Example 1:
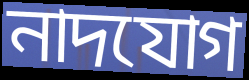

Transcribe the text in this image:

নাদযোগ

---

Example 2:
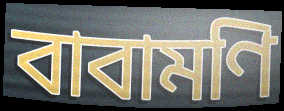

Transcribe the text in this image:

বাবামণি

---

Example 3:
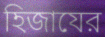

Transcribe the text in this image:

হিজাযের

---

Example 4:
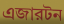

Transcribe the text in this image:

এজারটন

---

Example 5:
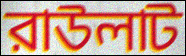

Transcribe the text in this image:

রাউলাট